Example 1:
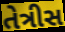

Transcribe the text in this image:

તેત્રીસ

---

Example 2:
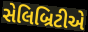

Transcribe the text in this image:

સેલિબ્રિટીએ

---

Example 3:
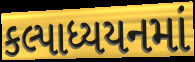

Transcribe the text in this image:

કલ્પાધ્યયનમાં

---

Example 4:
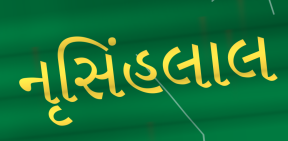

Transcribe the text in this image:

નૃસિંહલાલ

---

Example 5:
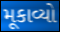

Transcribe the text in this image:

મૂકાવ્યો